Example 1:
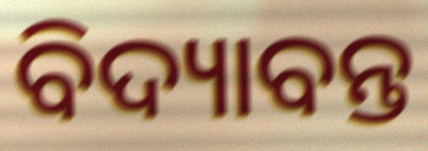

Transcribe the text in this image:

ବିଦ୍ୟାବନ୍ତ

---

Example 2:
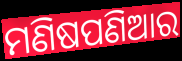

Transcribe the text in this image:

ମଣିଷପଣିଆର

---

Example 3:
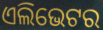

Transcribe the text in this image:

ଏଲିଭେଟର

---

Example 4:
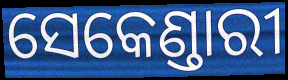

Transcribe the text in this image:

ସେକେଣ୍ଡାରୀ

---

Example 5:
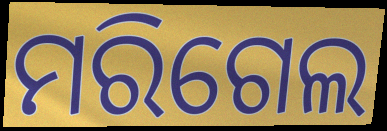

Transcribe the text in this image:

ମରିଗେଲ